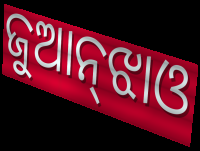
ଜୁଆନ୍‌ଝାଓ